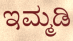
ಇಮ್ಮಡಿ